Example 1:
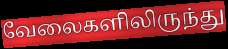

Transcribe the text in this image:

வேலைகளிலிருந்து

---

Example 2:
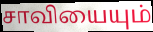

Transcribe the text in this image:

சாவியையும்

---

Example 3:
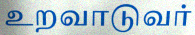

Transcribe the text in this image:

உறவாடுவர்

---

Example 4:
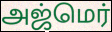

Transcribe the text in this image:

அஜ்மெர்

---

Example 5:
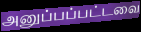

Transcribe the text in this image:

அனுப்பப்பட்டவை